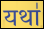
यथा॑